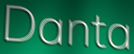
Danta